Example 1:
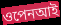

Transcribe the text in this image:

ওপেনআই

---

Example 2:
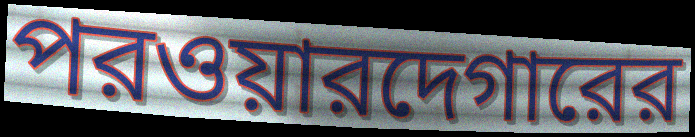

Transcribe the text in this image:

পরওয়ারদেগারের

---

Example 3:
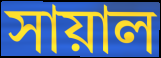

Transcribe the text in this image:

সায়াল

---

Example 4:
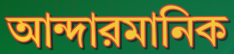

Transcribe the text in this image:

আন্দারমানিক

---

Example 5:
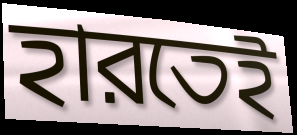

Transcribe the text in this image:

হারতেই